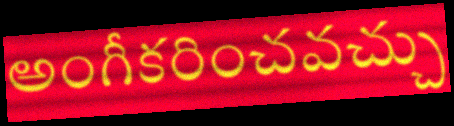
అంగీకరించవచ్చు